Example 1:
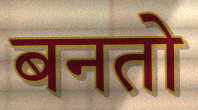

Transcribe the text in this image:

बनतो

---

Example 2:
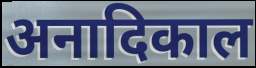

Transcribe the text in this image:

अनादिकाल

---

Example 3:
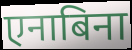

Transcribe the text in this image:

एनाबिना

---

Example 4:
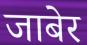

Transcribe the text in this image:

जाबेर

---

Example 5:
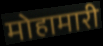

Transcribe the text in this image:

मोहामारी